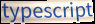
typescript